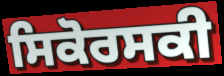
ਸਿਕੋਰਸਕੀ